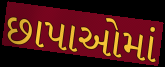
છાપાઓમાં